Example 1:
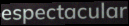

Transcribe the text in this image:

espectacular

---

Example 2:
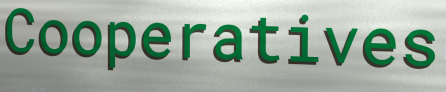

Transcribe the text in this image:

Cooperatives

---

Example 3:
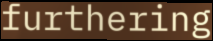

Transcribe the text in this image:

furthering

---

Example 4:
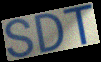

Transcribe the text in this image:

SDT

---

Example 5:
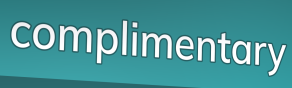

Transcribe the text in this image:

complimentary